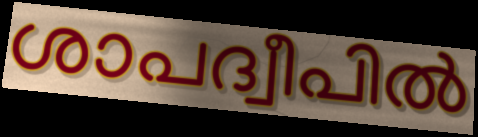
ശാപദ്വീപിൽ